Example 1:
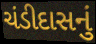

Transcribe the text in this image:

ચંડીદાસનું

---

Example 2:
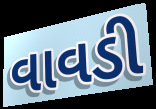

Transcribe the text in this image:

વાવડી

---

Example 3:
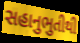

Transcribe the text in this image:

સહાનુભુતીથી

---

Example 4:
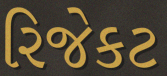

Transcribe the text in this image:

રિજેકટ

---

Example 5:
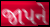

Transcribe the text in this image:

જાપને